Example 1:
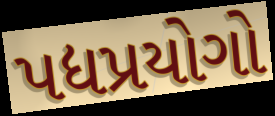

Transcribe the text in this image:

પદ્યપ્રયોગો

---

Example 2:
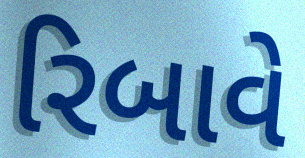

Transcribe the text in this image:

રિબાવે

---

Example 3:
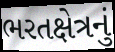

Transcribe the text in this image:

ભરતક્ષેત્રનું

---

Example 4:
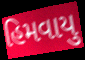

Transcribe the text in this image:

હિમવાયુ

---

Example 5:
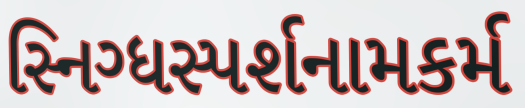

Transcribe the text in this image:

સ્નિગ્ધસ્પર્શનામકર્મ